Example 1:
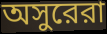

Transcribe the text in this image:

অসুরেরা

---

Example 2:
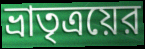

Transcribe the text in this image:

ভ্রাতৃত্রয়ের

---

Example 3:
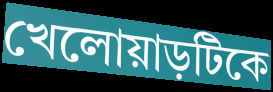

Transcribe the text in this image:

খেলোয়াড়টিকে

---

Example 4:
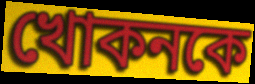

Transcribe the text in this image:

খোকনকে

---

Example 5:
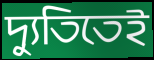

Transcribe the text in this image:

দ্যুতিতেই